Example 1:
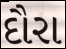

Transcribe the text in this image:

દૌરા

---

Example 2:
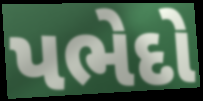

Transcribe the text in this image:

પભેદો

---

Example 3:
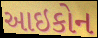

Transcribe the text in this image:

આઇકોન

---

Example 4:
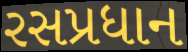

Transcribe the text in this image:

રસપ્રધાન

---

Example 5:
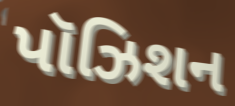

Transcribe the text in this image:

પૉઝિશન